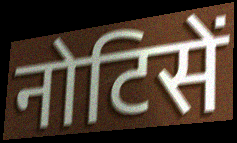
नोटिसें